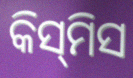
କିସ୍‌ମିସ